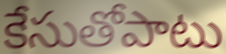
కేసుతోపాటు